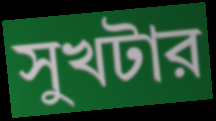
সুখটার